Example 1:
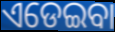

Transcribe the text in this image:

ଏଡେଇବା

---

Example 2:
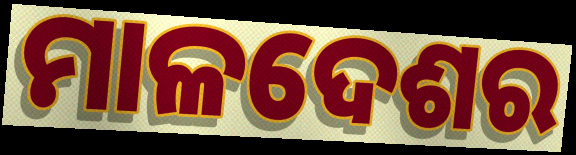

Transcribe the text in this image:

ମାଳଦେଶର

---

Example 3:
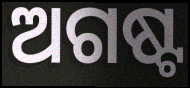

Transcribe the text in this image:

ଅଗଷ୍ଟ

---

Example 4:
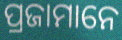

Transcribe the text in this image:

ପ୍ରଜାମାନେ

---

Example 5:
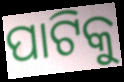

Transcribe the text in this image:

ପାଟିକୁ